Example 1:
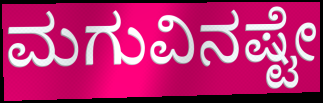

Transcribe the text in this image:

ಮಗುವಿನಷ್ಟೇ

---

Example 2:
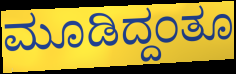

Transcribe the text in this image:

ಮೂಡಿದ್ದಂತೂ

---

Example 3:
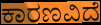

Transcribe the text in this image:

ಕಾರಣವಿದೆ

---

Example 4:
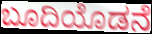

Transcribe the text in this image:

ಬೂದಿಯೊಡನೆ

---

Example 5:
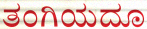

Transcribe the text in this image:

ತಂಗಿಯದೂ